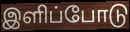
இளிப்போடு